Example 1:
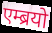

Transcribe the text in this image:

एम्ब्रयो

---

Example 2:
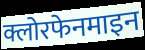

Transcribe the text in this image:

क्लोरफेनमाइन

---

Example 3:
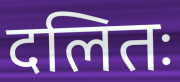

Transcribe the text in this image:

दलितः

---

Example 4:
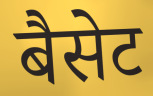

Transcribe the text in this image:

बैसेट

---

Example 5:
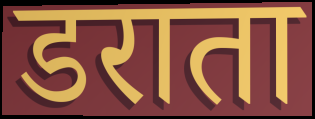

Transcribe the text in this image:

डराता